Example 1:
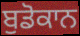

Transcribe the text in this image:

ਬੁਡੋਕਾਨ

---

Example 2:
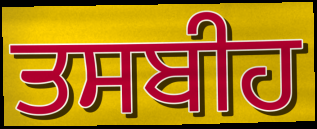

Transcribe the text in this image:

ਤਸਬੀਹ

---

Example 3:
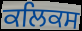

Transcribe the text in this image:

ਕਲਿਕਸ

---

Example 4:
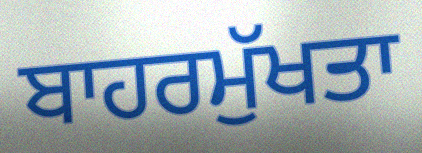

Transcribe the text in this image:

ਬਾਹਰਮੁੱਖਤਾ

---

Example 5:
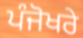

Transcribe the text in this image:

ਪੰਜੋਖਰੇ